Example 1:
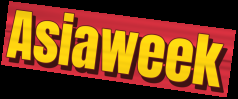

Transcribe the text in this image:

Asiaweek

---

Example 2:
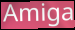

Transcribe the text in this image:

Amiga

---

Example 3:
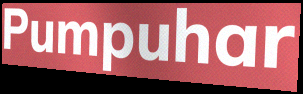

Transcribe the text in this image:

Pumpuhar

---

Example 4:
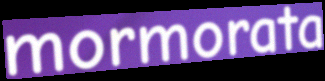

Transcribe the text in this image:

mormorata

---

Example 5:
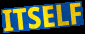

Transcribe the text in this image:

ITSELF